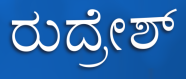
ರುದ್ರೇಶ್